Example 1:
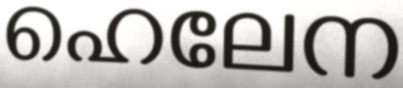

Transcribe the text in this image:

ഹെലേന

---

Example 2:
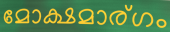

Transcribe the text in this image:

മോക്ഷമാര്ഗം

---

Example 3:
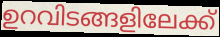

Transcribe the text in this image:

ഉറവിടങ്ങളിലേക്ക്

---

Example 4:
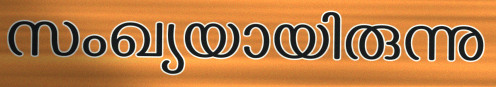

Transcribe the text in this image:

സംഖ്യയായിരുന്നു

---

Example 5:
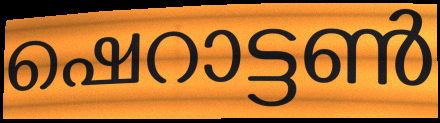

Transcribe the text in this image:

ഷെറാട്ടൺ